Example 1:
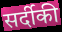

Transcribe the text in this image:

सर्दीकी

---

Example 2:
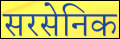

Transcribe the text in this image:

सरसेनिक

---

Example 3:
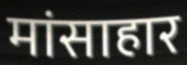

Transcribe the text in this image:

मांसाहार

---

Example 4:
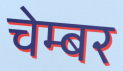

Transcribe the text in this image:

चेम्बर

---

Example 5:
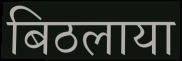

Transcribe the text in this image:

बिठलाया